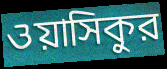
ওয়াসিকুর